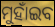
ମୁହାଁଇବ